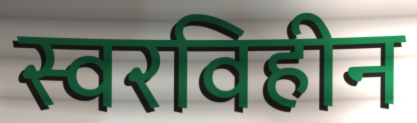
स्वरविहीन